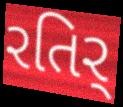
રતિર્